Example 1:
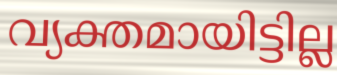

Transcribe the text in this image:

വ്യക്തമായിട്ടില്ല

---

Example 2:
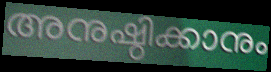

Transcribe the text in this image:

അനുഷ്ഠിക്കാനും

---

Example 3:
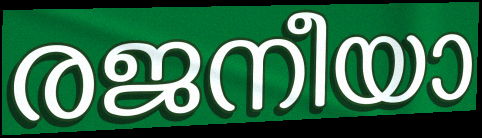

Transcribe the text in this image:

രജനീയാ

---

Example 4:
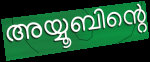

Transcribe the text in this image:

അയ്യൂബിന്റെ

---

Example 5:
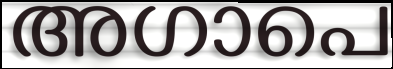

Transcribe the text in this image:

അഗാപെ